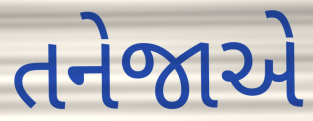
તનેજાએ